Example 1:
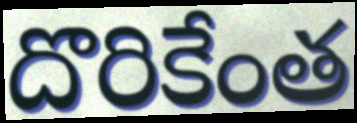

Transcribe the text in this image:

దొరికేంత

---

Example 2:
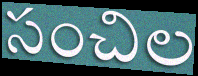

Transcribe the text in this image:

సంచిల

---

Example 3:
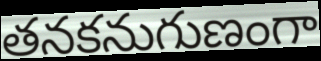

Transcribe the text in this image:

తనకనుగుణంగా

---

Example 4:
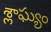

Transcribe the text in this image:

శ్లాఘ్యం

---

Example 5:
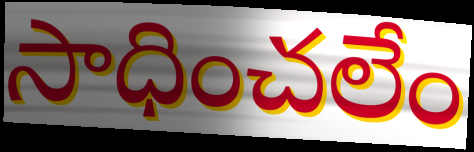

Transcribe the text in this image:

సాధించలేం